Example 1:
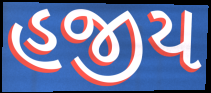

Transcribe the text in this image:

હજીય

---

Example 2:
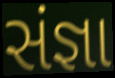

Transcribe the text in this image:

સંજ્ઞા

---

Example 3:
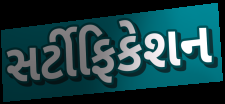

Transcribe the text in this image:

સર્ટીફિકેશન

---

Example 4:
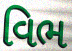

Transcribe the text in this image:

વિભ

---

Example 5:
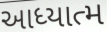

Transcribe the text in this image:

આધ્યાત્મ